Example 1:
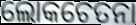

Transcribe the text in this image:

ଲୋକଚେତନା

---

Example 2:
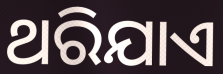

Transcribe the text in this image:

ଥରିଯାଏ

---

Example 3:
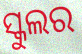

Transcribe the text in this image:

ସ୍କୁଲର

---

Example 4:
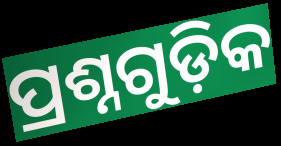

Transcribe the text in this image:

ପ୍ରଶ୍ନଗୁଡ଼ିକ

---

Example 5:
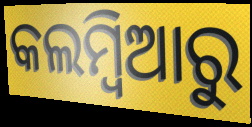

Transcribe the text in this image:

କଲମ୍ବିଆରୁ